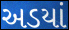
અડયાં